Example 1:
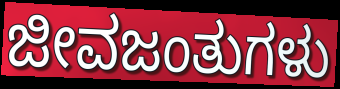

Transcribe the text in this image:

ಜೀವಜಂತುಗಳು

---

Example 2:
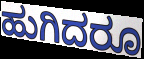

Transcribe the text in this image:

ಹುಗಿದರೂ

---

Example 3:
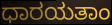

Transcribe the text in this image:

ಧಾರಯತಾಂ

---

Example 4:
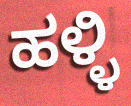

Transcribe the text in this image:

ಹಳ್ಳಿ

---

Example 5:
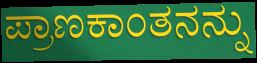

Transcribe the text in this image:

ಪ್ರಾಣಕಾಂತನನ್ನು